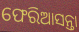
ଫେରିଆସନ୍ତା